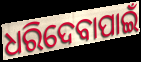
ଧରିଦେବାପାଇଁ